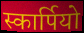
स्कार्पियो